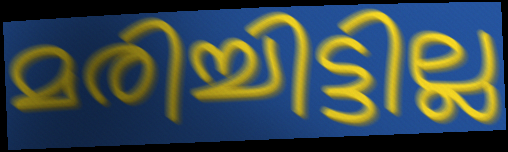
മരിച്ചിട്ടില്ല